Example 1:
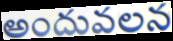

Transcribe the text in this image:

అందువలన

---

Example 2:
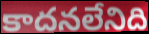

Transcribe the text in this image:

కాదనలేనిది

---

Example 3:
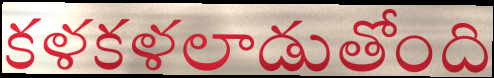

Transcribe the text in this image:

కళకళలాడుతోంది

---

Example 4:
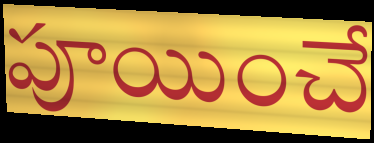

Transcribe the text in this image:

పూయించే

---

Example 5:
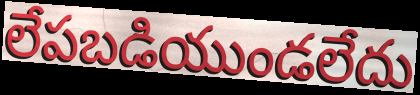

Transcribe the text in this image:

లేపబడియుండలేదు